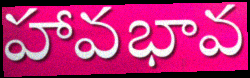
హావభావ